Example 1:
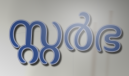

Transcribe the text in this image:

സ്റ്റർഭ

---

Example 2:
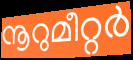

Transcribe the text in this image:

നൂറുമീറ്റർ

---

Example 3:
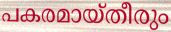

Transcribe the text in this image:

പകരമായ്തീരും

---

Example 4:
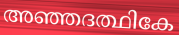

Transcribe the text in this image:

അഞ്ഞദത്ഥികേ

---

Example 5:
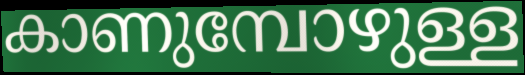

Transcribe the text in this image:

കാണുമ്പോഴുള്ള